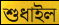
শুধাইল